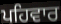
ਪਹਿਵਾਰ